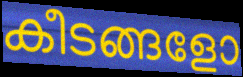
കീടങ്ങളോ